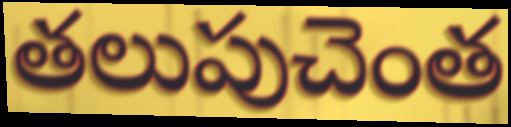
తలుపుచెంత